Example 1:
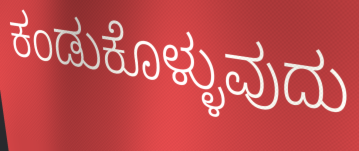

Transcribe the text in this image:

ಕಂಡುಕೊಳ್ಳುವುದು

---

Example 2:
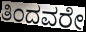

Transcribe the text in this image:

ತಿಂದವರೇ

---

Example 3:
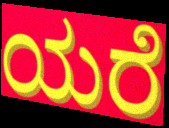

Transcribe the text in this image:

ಯರೆ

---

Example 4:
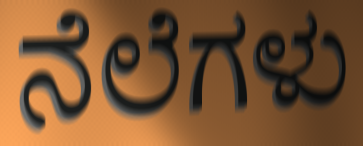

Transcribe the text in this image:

ನೆಲೆಗಳು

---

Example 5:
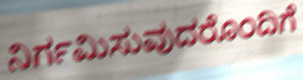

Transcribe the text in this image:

ನಿರ್ಗಮಿಸುವುದರೊಂದಿಗೆ